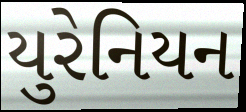
યુરેનિયન